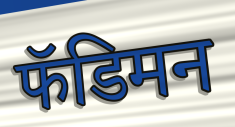
फॅडिमन